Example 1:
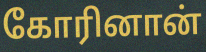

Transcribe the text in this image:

கோரினான்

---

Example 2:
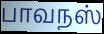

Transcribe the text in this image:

பாவநஸ்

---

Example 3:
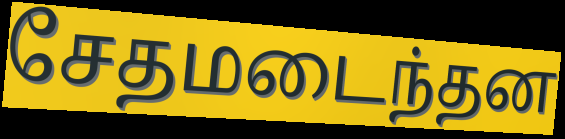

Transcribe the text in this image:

சேதமடைந்தன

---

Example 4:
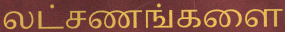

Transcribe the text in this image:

லட்சணங்களை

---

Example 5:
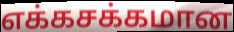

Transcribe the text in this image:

எக்கசக்கமான